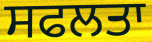
ਸਫਲਤਾ